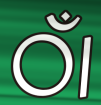
ଠାଁ